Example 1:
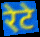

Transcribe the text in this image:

रेटे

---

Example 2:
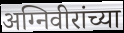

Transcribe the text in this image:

अग्निवीरांच्या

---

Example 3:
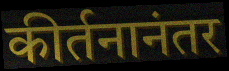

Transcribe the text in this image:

कीर्तनानंतर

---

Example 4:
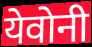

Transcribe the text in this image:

येवोनी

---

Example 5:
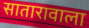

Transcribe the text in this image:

सातारावाला